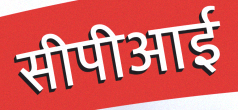
सीपीआई